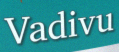
Vadivu